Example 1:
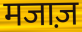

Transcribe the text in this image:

मजाज़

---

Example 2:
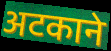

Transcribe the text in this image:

अटकाने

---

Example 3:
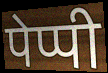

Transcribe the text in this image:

पेप्पी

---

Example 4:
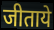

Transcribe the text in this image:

जीताये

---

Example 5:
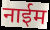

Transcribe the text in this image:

नाईम